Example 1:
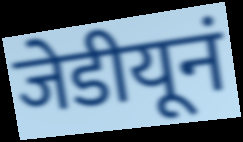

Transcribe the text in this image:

जेडीयूनं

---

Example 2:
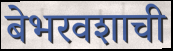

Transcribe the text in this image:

बेभरवशाची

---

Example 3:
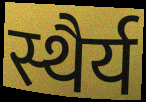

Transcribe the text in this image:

स्थैर्य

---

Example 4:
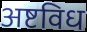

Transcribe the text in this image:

अष्टविध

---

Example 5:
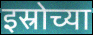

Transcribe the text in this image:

इस्रोच्या